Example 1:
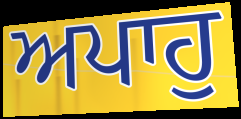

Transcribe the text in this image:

ਅਪਾਹੁ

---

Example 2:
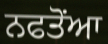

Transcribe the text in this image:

ਨਫਤੋਂਆ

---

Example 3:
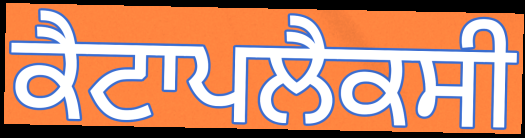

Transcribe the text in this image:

ਕੈਟਾਪਲੈਕਸੀ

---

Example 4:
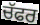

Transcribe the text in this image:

ਚੱਫਰ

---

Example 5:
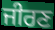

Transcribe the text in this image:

ਜੀਰਣ